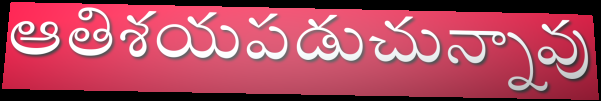
ఆతిశయపడుచున్నావు